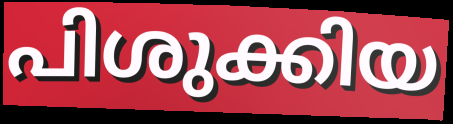
പിശുക്കിയ